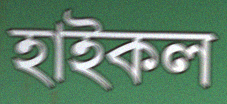
হাইকল